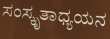
ಸಂಸ್ಕೃತಾಧ್ಯಯನ